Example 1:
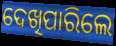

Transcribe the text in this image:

ଦେଖିପାରିଲେ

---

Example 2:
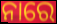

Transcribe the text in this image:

ନାରେ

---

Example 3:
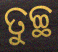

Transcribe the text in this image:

ତୁଚ୍ଛ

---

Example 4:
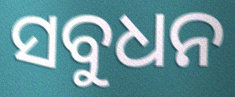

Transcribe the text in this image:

ସବୁଧନ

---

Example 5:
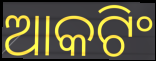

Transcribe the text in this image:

ଆକଟିଂ